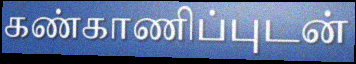
கண்காணிப்புடன்